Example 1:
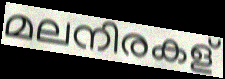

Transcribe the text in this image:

മലനിരകള്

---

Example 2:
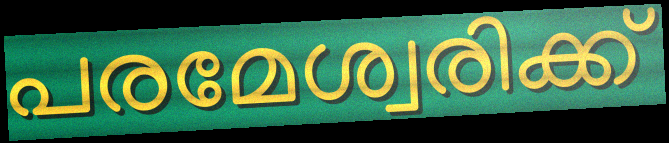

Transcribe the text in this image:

പരമേശ്വരിക്ക്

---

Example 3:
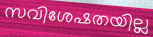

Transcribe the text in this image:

സവിശേഷതയില്ല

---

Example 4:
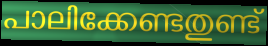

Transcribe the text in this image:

പാലിക്കേണ്ടതുണ്ട്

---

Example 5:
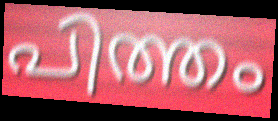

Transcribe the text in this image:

പിത്തം